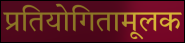
प्रतियोगितामूलक